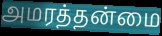
அமரத்தன்மை